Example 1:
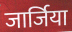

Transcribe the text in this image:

जार्जिया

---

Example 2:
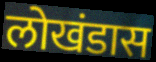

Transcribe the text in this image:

लोखंडास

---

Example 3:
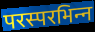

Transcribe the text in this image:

परस्परभिन्न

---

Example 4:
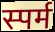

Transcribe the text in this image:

स्पर्म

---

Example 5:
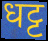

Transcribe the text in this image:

धट्ट